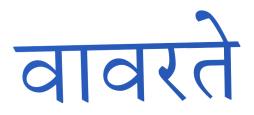
वावरते